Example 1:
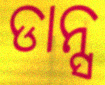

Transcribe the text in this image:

ଡାନ୍ସ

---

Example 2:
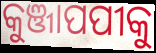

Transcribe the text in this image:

କୁଞ୍ଜାପପୀକୁ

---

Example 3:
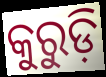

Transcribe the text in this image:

କୁରୁଡ଼ି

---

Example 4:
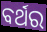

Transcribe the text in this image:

ବର୍ଥର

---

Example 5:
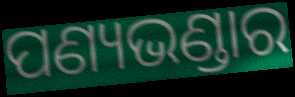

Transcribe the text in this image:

ପଣ୍ୟଭଣ୍ଡାର